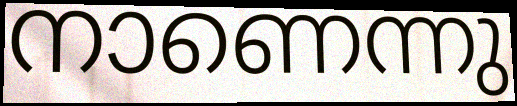
നാണെന്നു